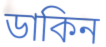
ডাকিন